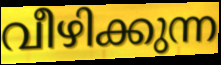
വീഴിക്കുന്ന